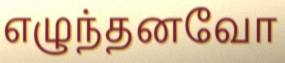
எழுந்தனவோ